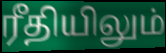
ரீதியிலும்